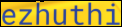
ezhuthi